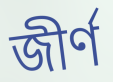
জীর্ণ